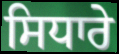
ਸਿਧਾਰੇ